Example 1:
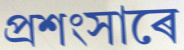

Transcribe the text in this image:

প্ৰশংসাৰে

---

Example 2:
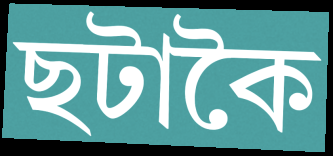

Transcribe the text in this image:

ছটাকৈ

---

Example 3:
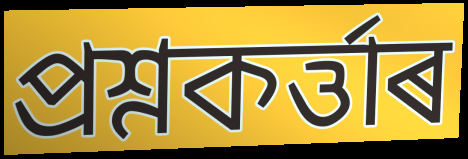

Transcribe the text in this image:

প্ৰশ্নকৰ্ত্তাৰ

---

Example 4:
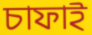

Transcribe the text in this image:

চাফাই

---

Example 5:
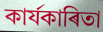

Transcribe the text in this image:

কাৰ্যকাৰিতা